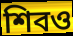
শিবও